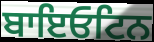
ਬਾਇਓਟਿਨ